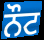
ਨੌਟ